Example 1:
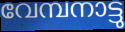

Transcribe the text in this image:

വേമ്പനാട്ടു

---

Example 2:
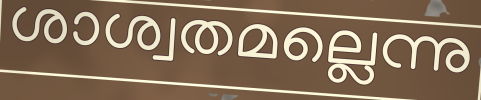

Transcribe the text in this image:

ശാശ്വതമല്ലെന്നു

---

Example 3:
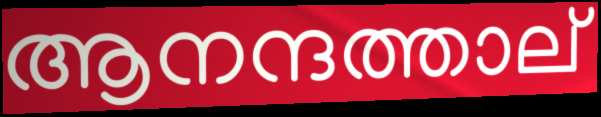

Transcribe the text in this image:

ആനന്ദത്താല്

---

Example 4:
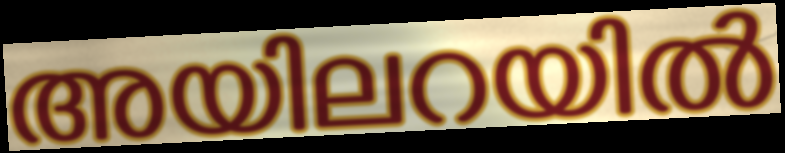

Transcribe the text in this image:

അയിലറയിൽ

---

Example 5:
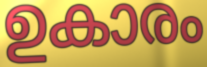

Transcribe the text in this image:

ഉകാരം